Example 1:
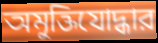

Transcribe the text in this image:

অমুক্তিযোদ্ধার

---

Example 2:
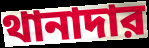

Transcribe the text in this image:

থানাদার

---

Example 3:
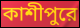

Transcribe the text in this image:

কাশীপুরে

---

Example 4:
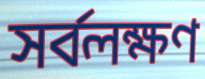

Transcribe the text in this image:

সর্বলক্ষণ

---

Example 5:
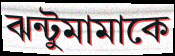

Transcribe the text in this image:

ঝন্টুমামাকে